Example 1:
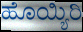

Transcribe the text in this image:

ಹೊಯ್ಯಿರಿ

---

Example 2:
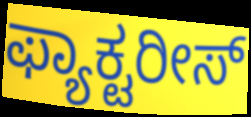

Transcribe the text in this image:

ಫ್ಯಾಕ್ಟರೀಸ್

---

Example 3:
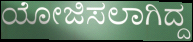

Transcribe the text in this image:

ಯೋಜಿಸಲಾಗಿದ್ದ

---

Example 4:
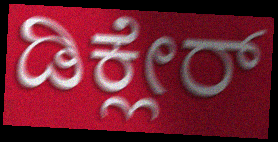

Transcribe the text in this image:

ಡಿಕ್ಲೇರ್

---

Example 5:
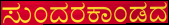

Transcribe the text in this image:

ಸುಂದರಕಾಂಡದ